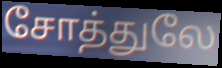
சோத்துலே